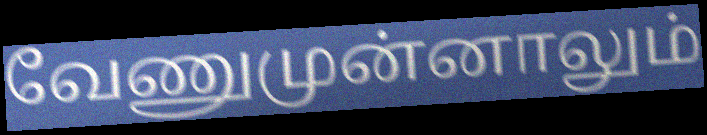
வேணுமுன்னாலும்